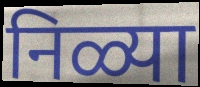
निळ्या